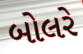
બોલરે